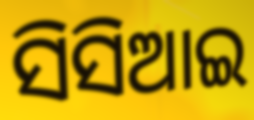
ସିସିଆଇ